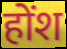
होंश